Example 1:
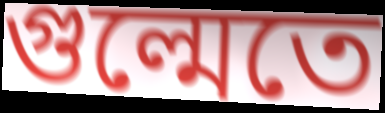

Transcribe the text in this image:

গুল্মেতে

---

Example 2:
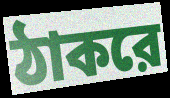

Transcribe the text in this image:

ঠাকরে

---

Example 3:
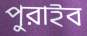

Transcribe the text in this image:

পুরাইব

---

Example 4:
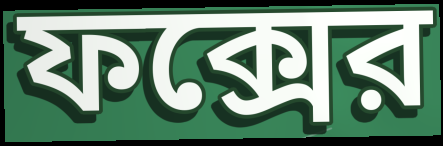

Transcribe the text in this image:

ফক্সের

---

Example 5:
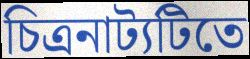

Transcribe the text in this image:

চিত্রনাট্যটিতে